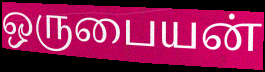
ஒருபையன்